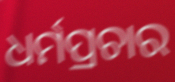
ଧର୍ମପ୍ରଚାର